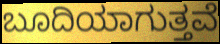
ಬೂದಿಯಾಗುತ್ತವೆ